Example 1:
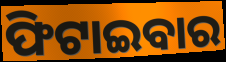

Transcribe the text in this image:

ଫିଟାଇବାର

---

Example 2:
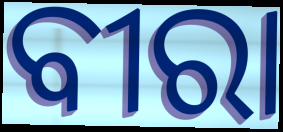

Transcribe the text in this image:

ବୀରା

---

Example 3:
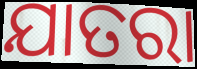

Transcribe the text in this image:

ଯାତରା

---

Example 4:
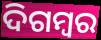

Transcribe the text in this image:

ଦିଗମ୍ୱର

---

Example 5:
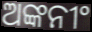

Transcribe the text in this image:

ଅଙ୍କନୀଂ